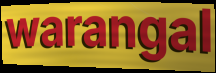
warangal